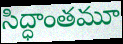
సిద్ధాంతమూ